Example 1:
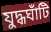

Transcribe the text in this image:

যুদ্ধঘাঁটি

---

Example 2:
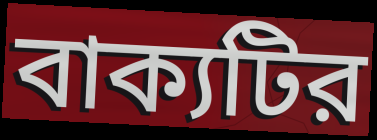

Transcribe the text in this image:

বাক্যটির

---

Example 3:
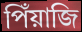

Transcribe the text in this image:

পিঁয়াজি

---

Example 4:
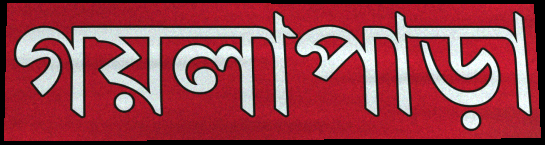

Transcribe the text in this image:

গয়লাপাড়া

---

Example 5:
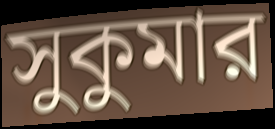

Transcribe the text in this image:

সুকুমার